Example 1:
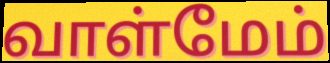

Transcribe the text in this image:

வாள்மேம்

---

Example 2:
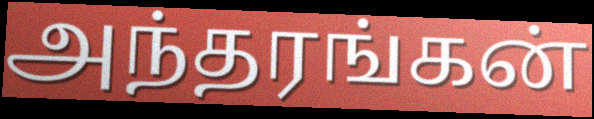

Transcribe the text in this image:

அந்தரங்கன்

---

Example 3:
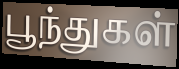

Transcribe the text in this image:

பூந்துகள்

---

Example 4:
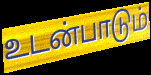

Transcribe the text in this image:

உடன்பாடும்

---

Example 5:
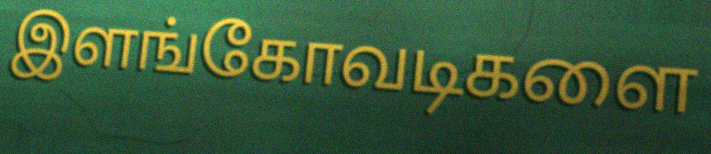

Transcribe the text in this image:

இளங்கோவடிகளை